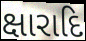
ક્ષારાદિ